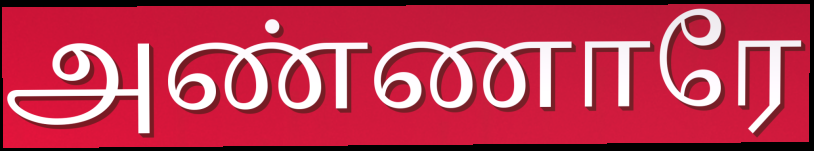
அண்ணாரே